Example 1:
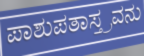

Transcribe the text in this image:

ಪಾಶುಪತಾಸ್ತ್ರವನು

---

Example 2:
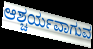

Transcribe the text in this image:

ಆಶ್ಚರ್ಯವಾಗುವ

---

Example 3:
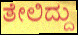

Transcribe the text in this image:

ತೇಲಿದ್ದು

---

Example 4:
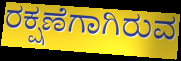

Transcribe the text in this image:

ರಕ್ಷಣೆಗಾಗಿರುವ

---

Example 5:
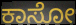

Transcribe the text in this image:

ಕಾಸೋ